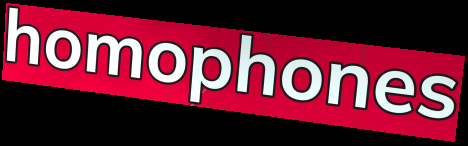
homophones